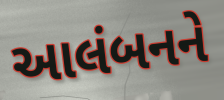
આલંબનને